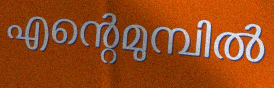
എന്റെമുമ്പിൽ